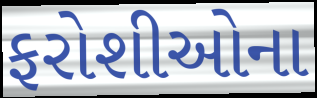
ફરોશીઓના